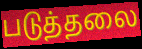
படுத்தலை